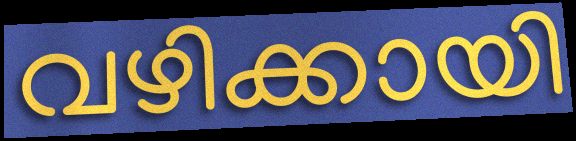
വഴിക്കായി